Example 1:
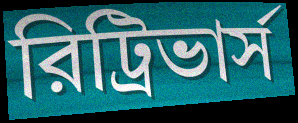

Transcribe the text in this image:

রিট্রিভার্স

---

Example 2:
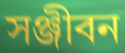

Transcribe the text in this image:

সঞ্জীবন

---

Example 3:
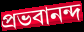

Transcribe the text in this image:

প্রভবানন্দ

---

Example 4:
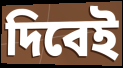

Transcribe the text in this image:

দিবেই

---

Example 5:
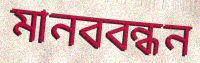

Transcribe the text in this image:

মানববন্ধন